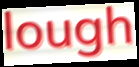
lough